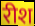
रीश